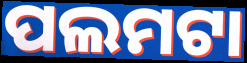
ପଲମଟା